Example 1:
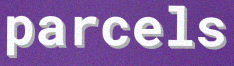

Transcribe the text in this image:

parcels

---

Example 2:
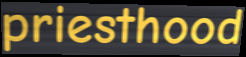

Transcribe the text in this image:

priesthood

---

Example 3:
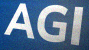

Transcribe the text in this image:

AGI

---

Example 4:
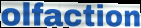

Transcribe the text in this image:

olfaction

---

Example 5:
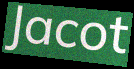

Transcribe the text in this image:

Jacot